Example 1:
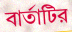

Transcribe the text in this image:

বার্তাটির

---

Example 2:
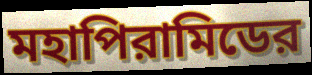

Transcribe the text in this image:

মহাপিরামিডের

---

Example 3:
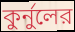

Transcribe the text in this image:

কুর্নুলের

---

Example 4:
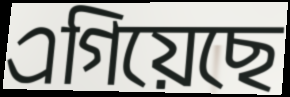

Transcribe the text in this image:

এগিয়েছে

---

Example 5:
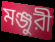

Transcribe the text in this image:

মঞ্জুরী